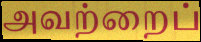
அவற்றைப்